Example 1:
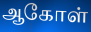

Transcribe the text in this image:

ஆகோள்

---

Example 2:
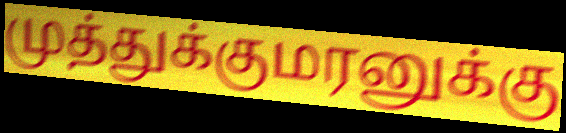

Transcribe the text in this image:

முத்துக்குமரனுக்கு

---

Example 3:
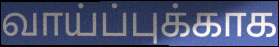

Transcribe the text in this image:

வாய்ப்புக்காக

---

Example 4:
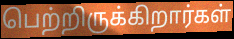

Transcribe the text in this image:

பெற்றிருக்கிறார்கள்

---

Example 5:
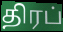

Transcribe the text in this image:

திரப்